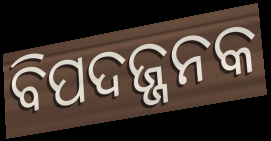
ବିପଦଜ୍ଜନକ